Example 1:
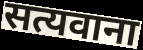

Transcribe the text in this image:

सत्यवाना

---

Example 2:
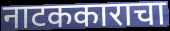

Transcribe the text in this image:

नाटककाराचा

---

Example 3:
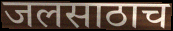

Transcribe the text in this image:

जलसाठाच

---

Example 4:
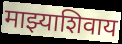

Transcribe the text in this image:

माझ्याशिवाय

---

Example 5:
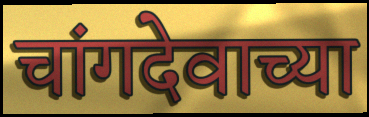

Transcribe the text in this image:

चांगदेवाच्या